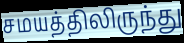
சமயத்திலிருந்து